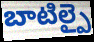
బాటిల్పై